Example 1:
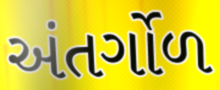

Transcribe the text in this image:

અંતર્ગોળ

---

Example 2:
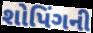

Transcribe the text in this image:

શોપિંગની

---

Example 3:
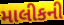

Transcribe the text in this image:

માલીકની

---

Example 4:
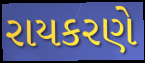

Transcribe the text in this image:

રાયકરણે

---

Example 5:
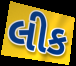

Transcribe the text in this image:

લીક